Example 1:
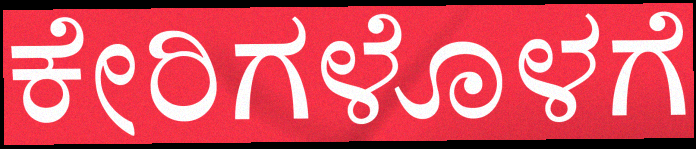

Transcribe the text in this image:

ಕೇರಿಗಳೊಳಗೆ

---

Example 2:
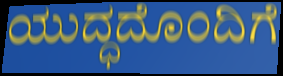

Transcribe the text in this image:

ಯುದ್ಧದೊಂದಿಗೆ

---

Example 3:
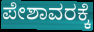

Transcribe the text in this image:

ಪೇಶಾವರಕ್ಕೆ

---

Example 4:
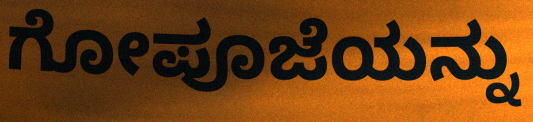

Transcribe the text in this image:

ಗೋಪೂಜೆಯನ್ನು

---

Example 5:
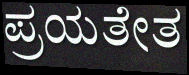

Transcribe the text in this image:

ಪ್ರಯತೇತ